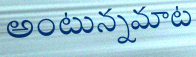
అంటున్నమాట